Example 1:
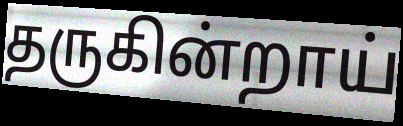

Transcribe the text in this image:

தருகின்றாய்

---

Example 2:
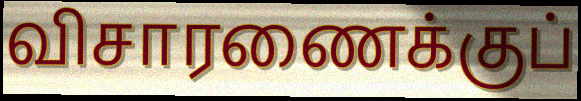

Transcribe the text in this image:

விசாரணைக்குப்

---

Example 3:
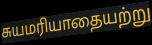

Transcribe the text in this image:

சுயமரியாதையற்று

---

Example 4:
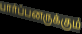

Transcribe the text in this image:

பார்ப்பனருக்கும்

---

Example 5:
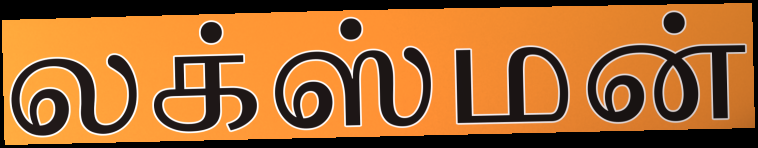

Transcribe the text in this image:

லக்ஸ்மன்